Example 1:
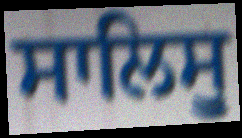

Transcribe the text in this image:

ਸਾਲਿਸੂ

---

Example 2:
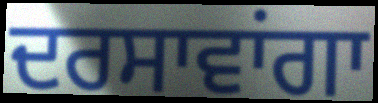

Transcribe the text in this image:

ਦਰਸਾਵਾਂਗਾ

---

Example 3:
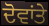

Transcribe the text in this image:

ਦੋਵਾਂਤੇ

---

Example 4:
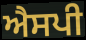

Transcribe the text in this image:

ਐਸਪੀ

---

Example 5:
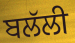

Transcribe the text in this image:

ਬਲੱਲੀ